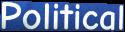
Political